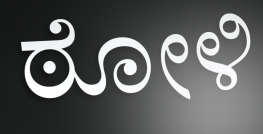
ಠೋಳಿ